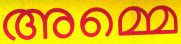
അമ്മെ